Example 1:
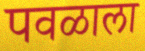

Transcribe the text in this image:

पवळाला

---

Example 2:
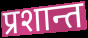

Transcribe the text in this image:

प्रशान्त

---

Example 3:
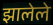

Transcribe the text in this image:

झालेले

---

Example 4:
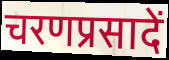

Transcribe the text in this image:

चरणप्रसादें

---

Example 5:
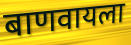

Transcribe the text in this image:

बाणवायला